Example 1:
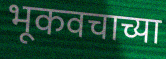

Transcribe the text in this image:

भूकवचाच्या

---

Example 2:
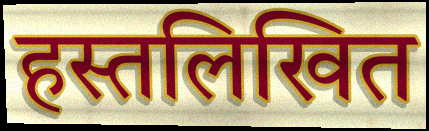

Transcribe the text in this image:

हस्तलिखित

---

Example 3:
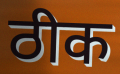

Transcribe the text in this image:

ठीक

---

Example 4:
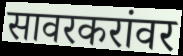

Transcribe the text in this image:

सावरकरांवर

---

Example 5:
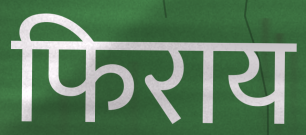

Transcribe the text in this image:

फिराय